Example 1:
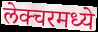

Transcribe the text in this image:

लेक्चरमध्ये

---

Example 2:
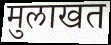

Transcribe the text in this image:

मुलाखत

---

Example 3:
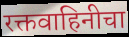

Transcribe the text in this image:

रक्तवाहिनीचा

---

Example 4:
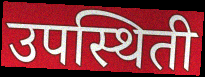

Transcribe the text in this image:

उपस्थिती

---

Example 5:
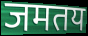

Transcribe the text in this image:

जमतय